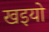
खइयो